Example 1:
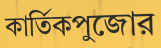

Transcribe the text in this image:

কার্তিকপুজোর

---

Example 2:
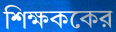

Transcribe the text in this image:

শিক্ষককের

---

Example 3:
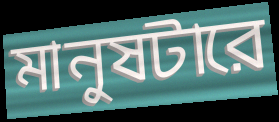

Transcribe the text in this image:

মানুষটারে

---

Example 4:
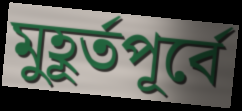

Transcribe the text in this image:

মুহূর্তপূর্বে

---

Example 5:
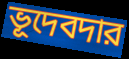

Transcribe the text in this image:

ভূদেবদার